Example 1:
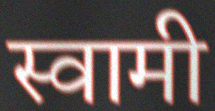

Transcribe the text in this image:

स्वामी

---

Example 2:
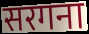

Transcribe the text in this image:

सरगना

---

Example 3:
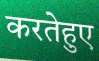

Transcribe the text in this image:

करतेहुए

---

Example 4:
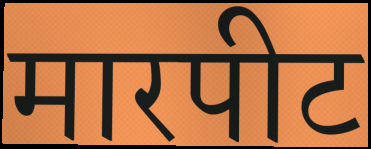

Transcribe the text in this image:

मारपीट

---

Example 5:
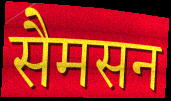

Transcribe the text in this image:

सैमसन